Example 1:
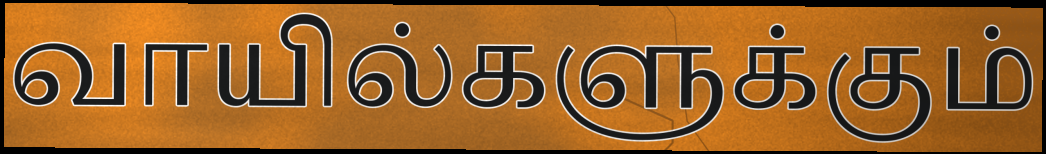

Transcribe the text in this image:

வாயில்களுக்கும்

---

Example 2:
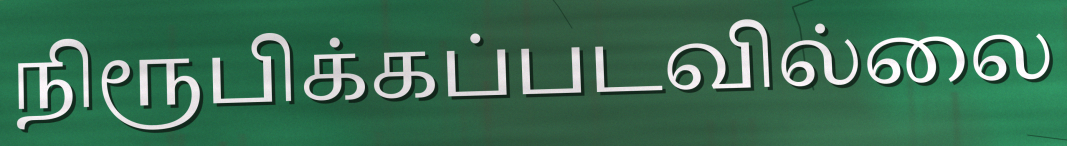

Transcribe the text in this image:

நிரூபிக்கப்படவில்லை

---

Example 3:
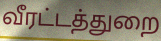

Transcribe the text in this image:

வீரட்டத்துறை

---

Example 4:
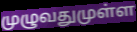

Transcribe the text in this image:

முழுவதுமுள்ள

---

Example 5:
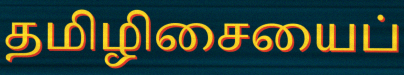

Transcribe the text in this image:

தமிழிசையைப்